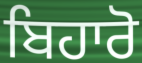
ਬਿਹਾਰੋ